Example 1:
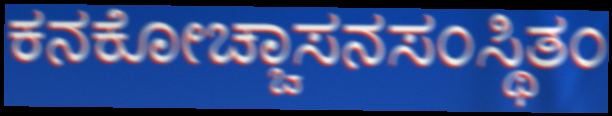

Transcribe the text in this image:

ಕನಕೋಚ್ಚಾಸನಸಂಸ್ಥಿತಂ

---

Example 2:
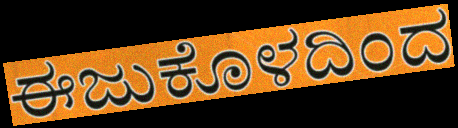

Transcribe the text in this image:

ಈಜುಕೊಳದಿಂದ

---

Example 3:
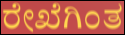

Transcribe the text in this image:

ರೇಖೆಗಿಂತ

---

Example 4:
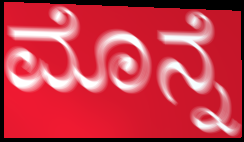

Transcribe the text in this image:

ಮೊನ್ನೆ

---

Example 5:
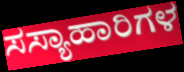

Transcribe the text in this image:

ಸಸ್ಯಾಹಾರಿಗಳ